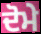
ਦੋਮੇ